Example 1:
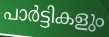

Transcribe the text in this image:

പാർട്ടികളും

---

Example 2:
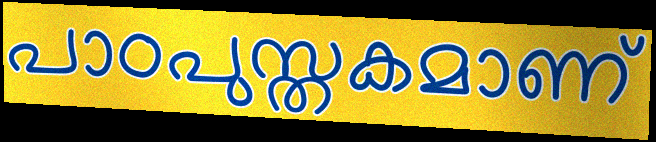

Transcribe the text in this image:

പാഠപുസ്തകമാണ്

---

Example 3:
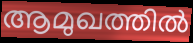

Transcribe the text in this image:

ആമുഖത്തിൽ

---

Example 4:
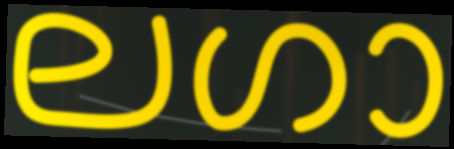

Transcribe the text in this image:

ലഗാ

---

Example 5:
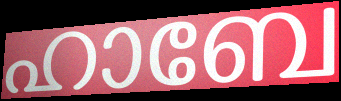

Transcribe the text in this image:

ഹാബേ